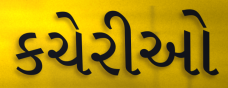
કચેરીઓ